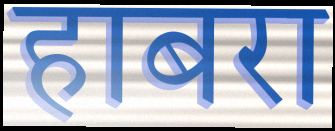
हाबरा